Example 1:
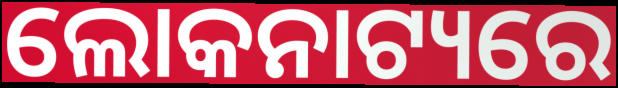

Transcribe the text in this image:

ଲୋକନାଟ୍ୟରେ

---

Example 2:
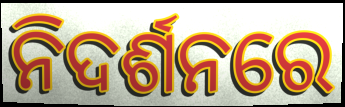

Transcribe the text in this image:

ନିଦର୍ଶନରେ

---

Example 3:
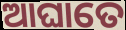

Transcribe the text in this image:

ଆଘାତେ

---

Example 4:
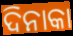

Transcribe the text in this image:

ଦିନାକା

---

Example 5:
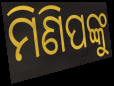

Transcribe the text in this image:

ମିଣିପଙ୍କୁ